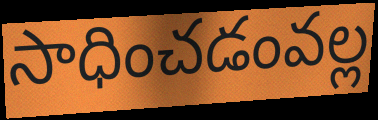
సాధించడంవల్ల